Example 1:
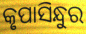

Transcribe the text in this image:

କୃପାସିନ୍ଧୁର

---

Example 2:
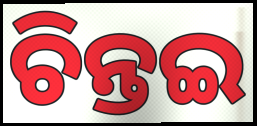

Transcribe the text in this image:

ଚିନ୍ତଇ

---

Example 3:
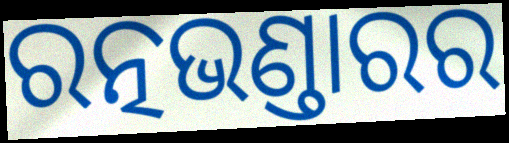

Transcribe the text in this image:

ରତ୍ନଭଣ୍ଡାରର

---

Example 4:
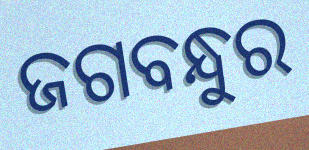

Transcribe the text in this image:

ଜଗବନ୍ଧୁର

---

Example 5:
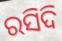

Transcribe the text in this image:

ରସିଦି